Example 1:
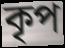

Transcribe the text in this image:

কৃপ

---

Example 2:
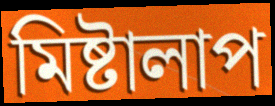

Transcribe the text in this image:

মিষ্টালাপ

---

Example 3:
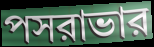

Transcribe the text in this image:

পসরাভার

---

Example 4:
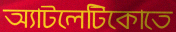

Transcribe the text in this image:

অ্যাটলেটিকোতে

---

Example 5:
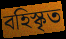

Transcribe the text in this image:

বহিস্কৃত